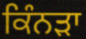
ਕਿੰਨੜਾ